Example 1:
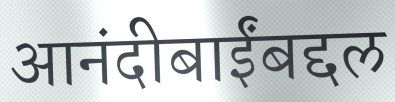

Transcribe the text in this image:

आनंदीबाईंबद्दल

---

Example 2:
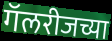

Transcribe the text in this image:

गॅलरीजच्या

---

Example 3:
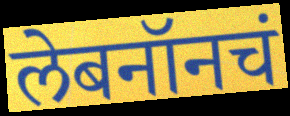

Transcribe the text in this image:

लेबनॉनचं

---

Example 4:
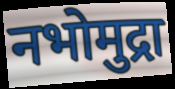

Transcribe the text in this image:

नभोमुद्रा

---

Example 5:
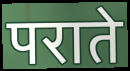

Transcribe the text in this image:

पराते